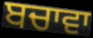
ਬਚਾਵਾ